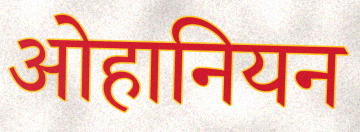
ओहानियन